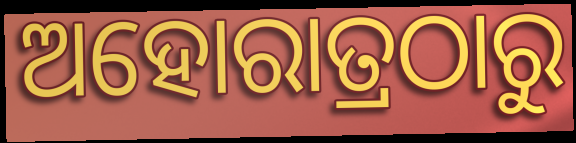
ଅହୋରାତ୍ରଠାରୁ